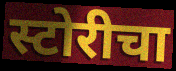
स्टोरीचा